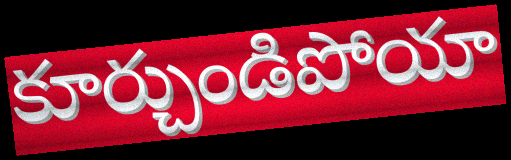
కూర్చుండిపోయా